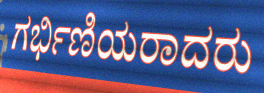
ಗರ್ಭಿಣಿಯರಾದರು